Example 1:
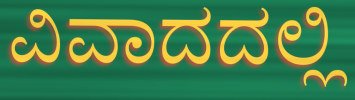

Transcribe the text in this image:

ವಿವಾದದಲ್ಲಿ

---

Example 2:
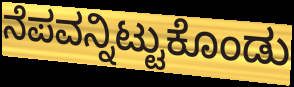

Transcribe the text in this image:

ನೆಪವನ್ನಿಟ್ಟುಕೊಂಡು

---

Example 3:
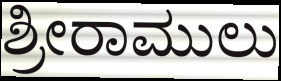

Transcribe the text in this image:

ಶ್ರೀರಾಮುಲು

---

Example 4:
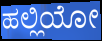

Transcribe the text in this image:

ಹಲ್ಲಿಯೋ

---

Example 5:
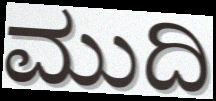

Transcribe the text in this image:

ಮುದಿ